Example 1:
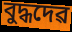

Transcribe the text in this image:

বুদ্ধদেৱ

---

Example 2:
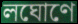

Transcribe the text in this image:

লঘোণে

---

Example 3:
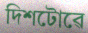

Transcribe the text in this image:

দিশটোৱে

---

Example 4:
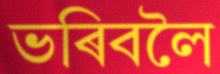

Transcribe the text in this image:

ভৰিবলৈ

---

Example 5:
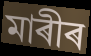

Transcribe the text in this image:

মাৰীৰ